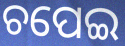
ଚପେଇ